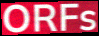
ORFs